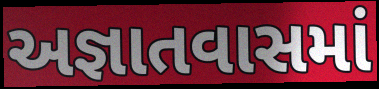
અજ્ઞાતવાસમાં